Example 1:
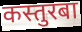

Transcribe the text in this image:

कस्तुरबा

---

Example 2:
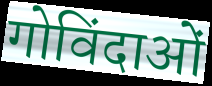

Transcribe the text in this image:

गोविंदाओं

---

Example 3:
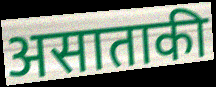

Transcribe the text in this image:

असाताकी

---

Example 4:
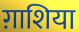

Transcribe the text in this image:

ग़ाशिया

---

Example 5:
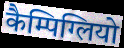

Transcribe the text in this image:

कैम्पिग्लियो